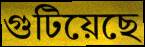
গুটিয়েছে